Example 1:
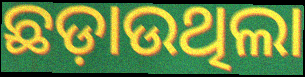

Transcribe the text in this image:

ଛଡ଼ାଉଥିଲା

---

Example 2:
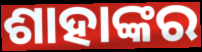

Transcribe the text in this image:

ଶାହାଙ୍କର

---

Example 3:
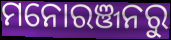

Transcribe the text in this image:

ମନୋରଞ୍ଜନରୁ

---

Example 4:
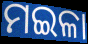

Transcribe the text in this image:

ମଇଳା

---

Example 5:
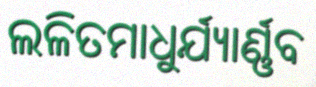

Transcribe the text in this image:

ଲଳିତମାଧୁର୍ଯ୍ୟାର୍ଣ୍ଣବ